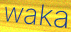
waka